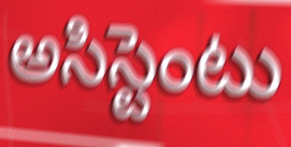
అసిస్టెంటు